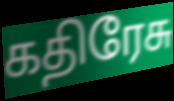
கதிரேசு